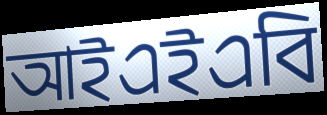
আইএইএবি